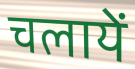
चलायें